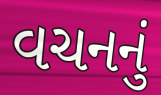
વચનનું